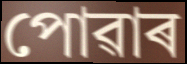
পোৱাৰ